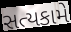
સત્યકામે